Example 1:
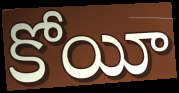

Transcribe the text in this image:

కోయీ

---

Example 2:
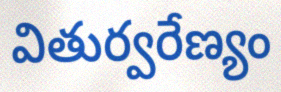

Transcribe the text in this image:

వితుర్వరేణ్యం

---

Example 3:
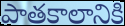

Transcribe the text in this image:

పాతకాలానికి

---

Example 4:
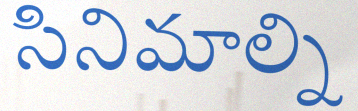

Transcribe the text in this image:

సినిమాల్ని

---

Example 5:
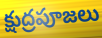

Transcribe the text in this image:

క్షుద్రపూజలు